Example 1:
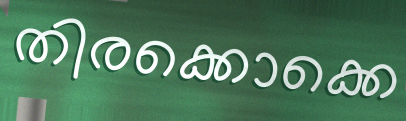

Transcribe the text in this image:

തിരക്കൊക്കെ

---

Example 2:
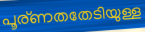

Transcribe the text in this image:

പൂര്ണതതേടിയുള്ള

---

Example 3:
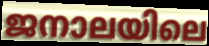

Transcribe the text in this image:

ജനാലയിലെ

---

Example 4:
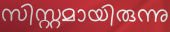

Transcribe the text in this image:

സിസ്റ്റമായിരുന്നു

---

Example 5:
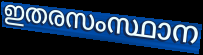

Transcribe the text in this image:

ഇതരസംസ്ഥാന